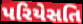
પરિયેસતિ